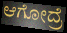
ಆಗೋದ್ರೆ